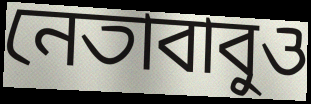
নেতাবাবুও